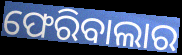
ଫେରିବାଲାର